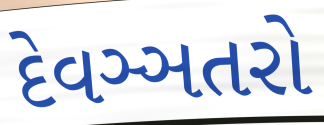
દેવઞ્ઞતરો